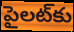
పైలట్‌కు